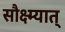
सौक्ष्म्यात्